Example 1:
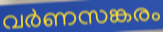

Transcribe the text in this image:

വർണസങ്കരം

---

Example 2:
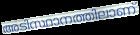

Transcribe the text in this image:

അടിസ്ഥാനത്തിലാണ്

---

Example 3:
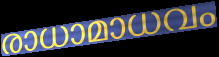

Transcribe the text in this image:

രാധാമാധവം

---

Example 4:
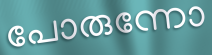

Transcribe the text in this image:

പോരുന്നോ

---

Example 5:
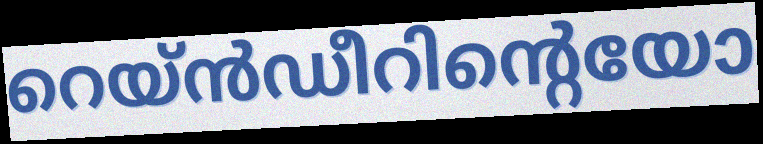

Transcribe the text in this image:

റെയ്ൻഡീറിന്റെയോ